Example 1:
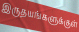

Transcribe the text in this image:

இருதயங்களுக்குள்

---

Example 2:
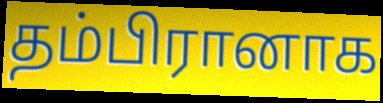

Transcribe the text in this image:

தம்பிரானாக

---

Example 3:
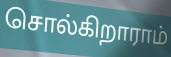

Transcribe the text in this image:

சொல்கிறாராம்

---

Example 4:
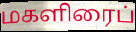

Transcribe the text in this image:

மகளிரைப்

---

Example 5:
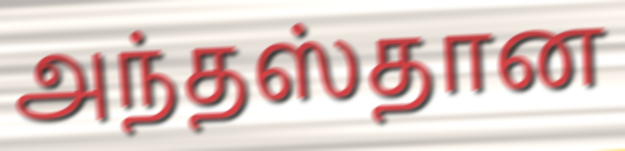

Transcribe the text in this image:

அந்தஸ்தான